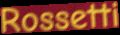
Rossetti